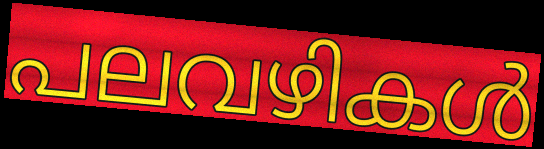
പലവഴികൾ